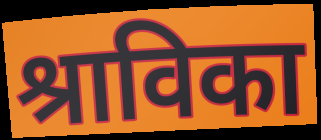
श्राविका